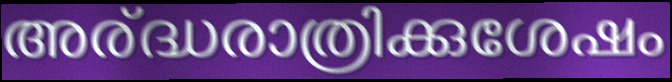
അര്ദ്ധരാത്രിക്കുശേഷം